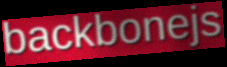
backbonejs